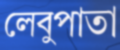
লেবুপাতা